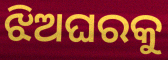
ଝିଅଘରକୁ